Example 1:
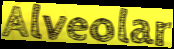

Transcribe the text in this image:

Alveolar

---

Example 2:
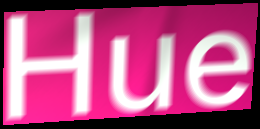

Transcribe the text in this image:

Hue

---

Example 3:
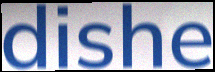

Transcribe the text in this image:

dishe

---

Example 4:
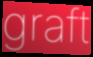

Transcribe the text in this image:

graft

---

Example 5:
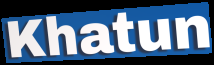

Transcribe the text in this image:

Khatun